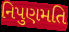
નિપુણમતિ